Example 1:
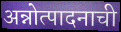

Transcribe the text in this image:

अन्नोत्पादनाची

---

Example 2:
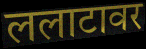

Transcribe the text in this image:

ललाटावर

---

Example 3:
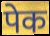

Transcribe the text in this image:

पेक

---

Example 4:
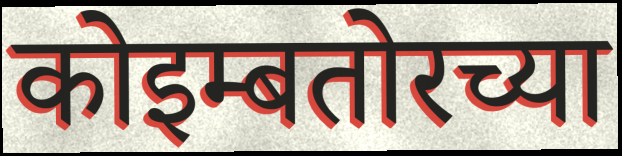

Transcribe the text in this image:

कोइम्बतोरच्या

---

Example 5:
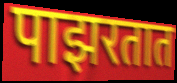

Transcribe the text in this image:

पाझरतात